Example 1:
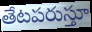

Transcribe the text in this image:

తేటపరుస్తూ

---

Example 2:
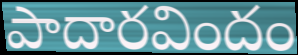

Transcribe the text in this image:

పాదారవిందం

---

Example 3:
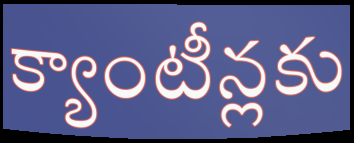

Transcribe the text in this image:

క్యాంటీన్లకు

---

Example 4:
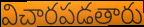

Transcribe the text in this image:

విచారపడతారు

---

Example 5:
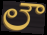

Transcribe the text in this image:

లౌ